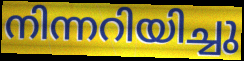
നിന്നറിയിച്ചു